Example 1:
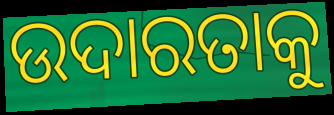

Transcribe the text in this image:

ଉଦାରତାକୁ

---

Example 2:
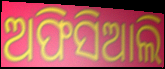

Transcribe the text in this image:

ଅଫିସିଆଲି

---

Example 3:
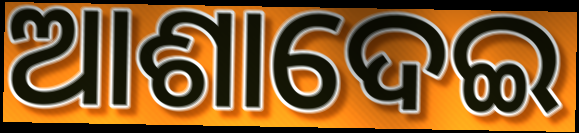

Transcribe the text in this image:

ଆଶାଦେଇ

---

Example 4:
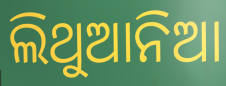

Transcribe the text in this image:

ଲିଥୁଆନିଆ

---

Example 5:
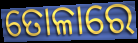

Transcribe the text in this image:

ତୋଳାରେ